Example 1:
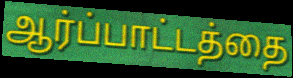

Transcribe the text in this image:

ஆர்ப்பாட்டத்தை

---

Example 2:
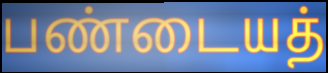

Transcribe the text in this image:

பண்டையத்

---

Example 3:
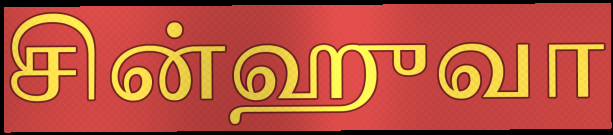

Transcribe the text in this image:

சின்ஹுவா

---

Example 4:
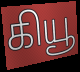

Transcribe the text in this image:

கியூ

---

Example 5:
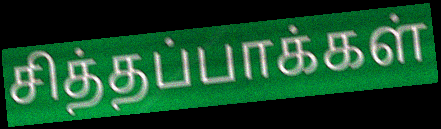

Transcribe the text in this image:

சித்தப்பாக்கள்